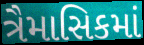
ત્રૈમાસિકમાં